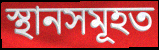
স্থানসমূহত